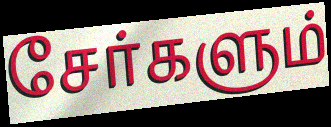
சேர்களும்